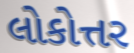
લોકોત્તર